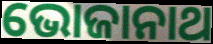
ଭୋଜାନାଥ